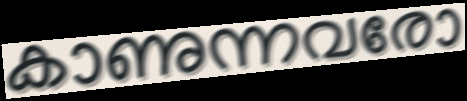
കാണുന്നവരോ